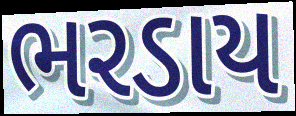
ભરડાય